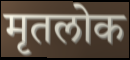
मृतलोक